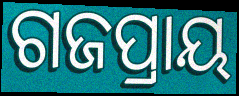
ଗଜପ୍ରାୟ